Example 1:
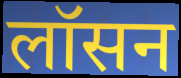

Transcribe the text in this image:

लॉसन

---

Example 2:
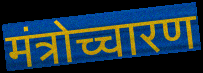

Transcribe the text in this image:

मंत्रोच्चारण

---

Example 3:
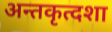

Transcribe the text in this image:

अन्तकृत्दशा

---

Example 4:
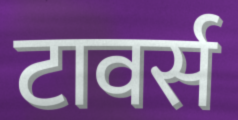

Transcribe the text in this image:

टावर्स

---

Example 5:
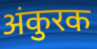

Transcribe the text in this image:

अंकुरक